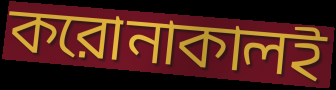
করোনাকালই